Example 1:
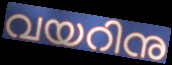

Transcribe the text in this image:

വയറിനു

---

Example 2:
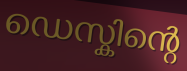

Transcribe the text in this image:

ഡെസ്കിന്റെ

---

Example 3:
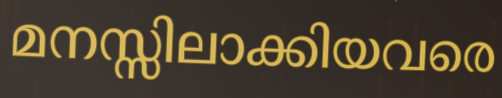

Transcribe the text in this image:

മനസ്സിലാക്കിയവരെ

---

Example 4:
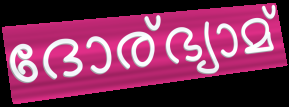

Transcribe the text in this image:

ദോര്ഭ്യാമ്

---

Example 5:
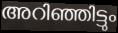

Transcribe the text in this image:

അറിഞ്ഞിട്ടും